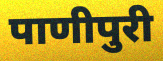
पाणीपुरी